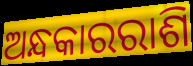
ଅନ୍ଧକାରରାଶି